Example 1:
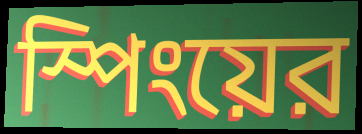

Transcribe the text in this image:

স্পিংয়ের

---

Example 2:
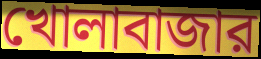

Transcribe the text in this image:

খোলাবাজার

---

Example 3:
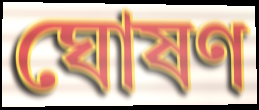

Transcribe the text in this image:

ঘোষণ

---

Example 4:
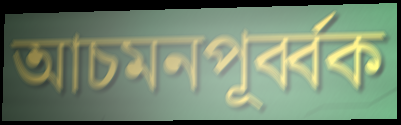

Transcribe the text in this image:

আচমনপূর্ব্বক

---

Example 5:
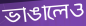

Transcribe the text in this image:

ভাঙালেও